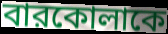
বারকোলাকে